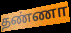
தண்ணா